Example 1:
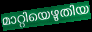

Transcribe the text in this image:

മാറ്റിയെഴുതിയ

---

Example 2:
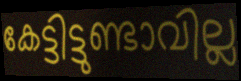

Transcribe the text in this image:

കേട്ടിട്ടുണ്ടാവില്ല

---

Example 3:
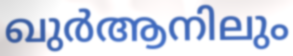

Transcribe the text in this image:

ഖുർആനിലും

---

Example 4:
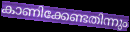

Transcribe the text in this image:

കാണിക്കേണ്ടതിന്നും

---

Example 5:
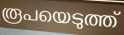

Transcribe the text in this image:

രൂപയെടുത്ത്